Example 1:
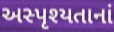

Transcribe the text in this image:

અસ્પૃશ્યતાનાં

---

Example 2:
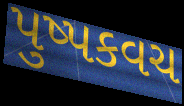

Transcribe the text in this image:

પુષ્પકવચ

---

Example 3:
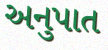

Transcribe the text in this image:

અનુપાત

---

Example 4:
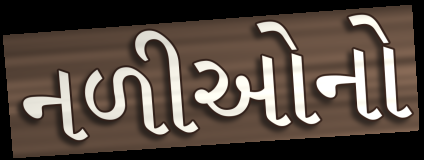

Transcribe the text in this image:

નળીઓનો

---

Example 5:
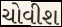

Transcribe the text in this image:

ચોવીશ